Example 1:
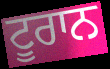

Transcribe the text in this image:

ਟੂਰਾਨ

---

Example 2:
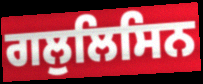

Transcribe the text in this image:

ਗਲੁਲਿਸਿਨ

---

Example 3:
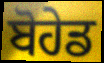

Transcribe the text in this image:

ਬੋਹੇਡ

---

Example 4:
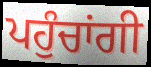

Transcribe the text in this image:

ਪਹੁੰਚਾਂਗੀ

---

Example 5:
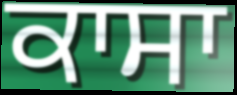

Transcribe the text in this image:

ਕਾਸਾ